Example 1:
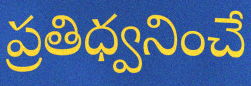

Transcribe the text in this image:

ప్రతిధ్వనించే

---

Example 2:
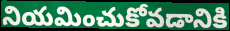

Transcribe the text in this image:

నియమించుకోవడానికి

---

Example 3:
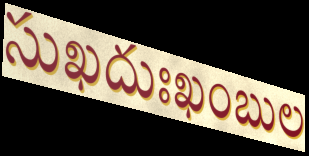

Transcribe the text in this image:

సుఖదుఃఖంబుల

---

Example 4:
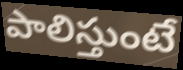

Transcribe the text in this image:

పాలిస్తుంటే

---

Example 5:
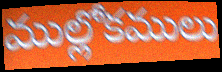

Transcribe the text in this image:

ముల్లోకములు